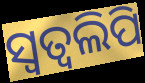
ସ୍ୱତ୍ୱଲିପି